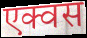
एक्वस